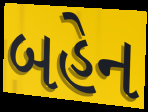
બહેન